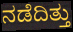
ನಡೆದಿತ್ತು